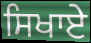
ਸਿਖਾਏੇ